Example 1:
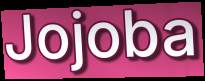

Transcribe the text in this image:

Jojoba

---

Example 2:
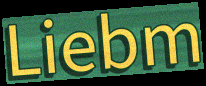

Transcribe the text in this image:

Liebm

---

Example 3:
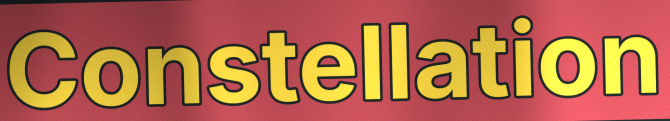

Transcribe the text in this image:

Constellation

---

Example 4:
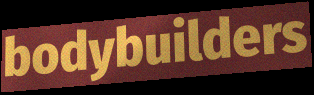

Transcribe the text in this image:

bodybuilders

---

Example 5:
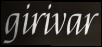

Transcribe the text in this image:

girivar